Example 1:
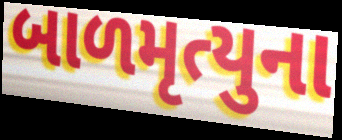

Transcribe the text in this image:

બાળમૃત્યુના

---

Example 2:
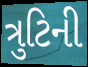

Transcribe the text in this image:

ત્રુટિની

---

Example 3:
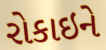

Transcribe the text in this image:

રોકાઇને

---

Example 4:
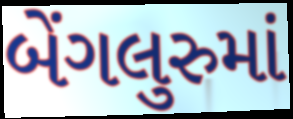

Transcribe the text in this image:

બેંગલુરુમાં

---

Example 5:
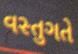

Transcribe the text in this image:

વસ્તુગતે